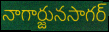
నాగార్జునసాగర్